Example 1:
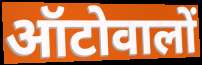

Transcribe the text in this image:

ऑटोवालों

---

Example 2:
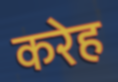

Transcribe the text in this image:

करेह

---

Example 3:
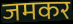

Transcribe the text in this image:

जमकर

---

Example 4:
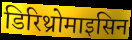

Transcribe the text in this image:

डिरिथ्रोमाइसिन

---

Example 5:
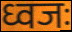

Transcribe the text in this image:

ध्वजः